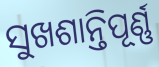
ସୁଖଶାନ୍ତିପୂର୍ଣ୍ଣ